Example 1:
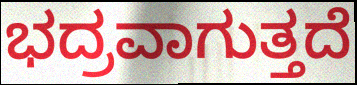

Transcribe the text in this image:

ಭದ್ರವಾಗುತ್ತದೆ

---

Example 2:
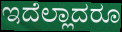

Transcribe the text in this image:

ಇದೆಲ್ಲಾದರೂ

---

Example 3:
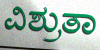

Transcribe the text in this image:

ವಿಶ್ರುತಾ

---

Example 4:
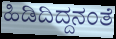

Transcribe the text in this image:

ಹಿಡಿದಿದ್ದನಂತೆ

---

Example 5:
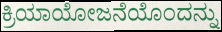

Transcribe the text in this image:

ಕ್ರಿಯಾಯೋಜನೆಯೊಂದನ್ನು